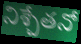
నిశ్చేతనో